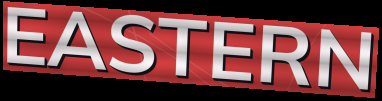
EASTERN